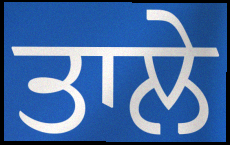
ਤਾਲੇ